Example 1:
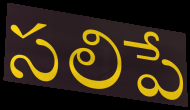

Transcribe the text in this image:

సలిపే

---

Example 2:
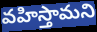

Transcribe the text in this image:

వహిస్తామని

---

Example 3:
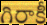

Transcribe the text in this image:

గిరాకీ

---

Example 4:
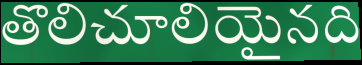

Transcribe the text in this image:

తొలిచూలియైనది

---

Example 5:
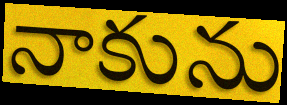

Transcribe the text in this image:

నాకును